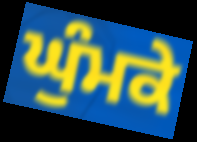
ਘੁੰਮਕੇ